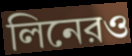
লিনেরও